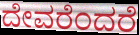
ದೇವರೆಂದರೆ